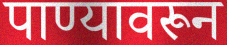
पाण्यावरून